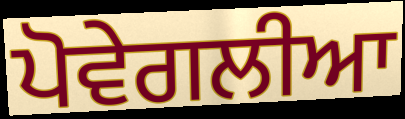
ਪੋਵੇਗਲੀਆ